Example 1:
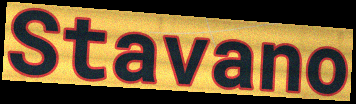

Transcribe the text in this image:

Stavano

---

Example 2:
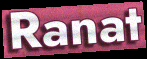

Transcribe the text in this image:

Ranat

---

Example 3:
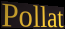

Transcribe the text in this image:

Pollat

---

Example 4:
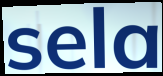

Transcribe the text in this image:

sela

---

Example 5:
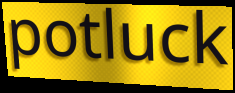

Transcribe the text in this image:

potluck